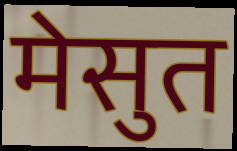
मेसुत